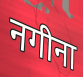
नगीना